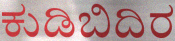
ಕುಡಿಬಿದಿರ